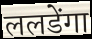
ललडेंगा